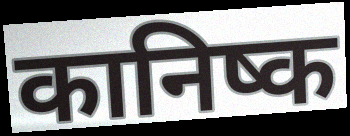
कानिष्क